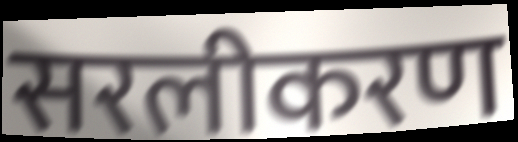
सरलीकरण